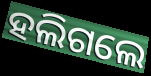
ହଲିଗଲେ